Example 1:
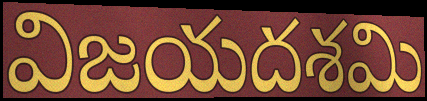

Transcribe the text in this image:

విజయదశమి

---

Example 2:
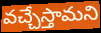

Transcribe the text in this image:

వచ్చేస్తామని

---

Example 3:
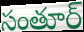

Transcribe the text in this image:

సంతూర్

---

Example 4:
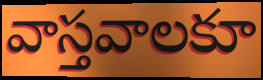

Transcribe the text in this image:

వాస్తవాలకూ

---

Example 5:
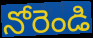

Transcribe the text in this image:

నోరెండి